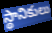
స్థానికులు